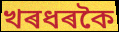
খৰধৰকৈ